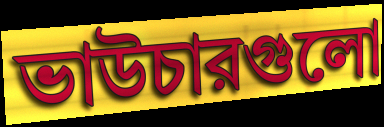
ভাউচারগুলো